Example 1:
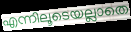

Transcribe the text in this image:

എന്നിലൂടെയല്ലാതെ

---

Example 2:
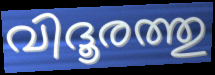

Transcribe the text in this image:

വിദൂരത്തു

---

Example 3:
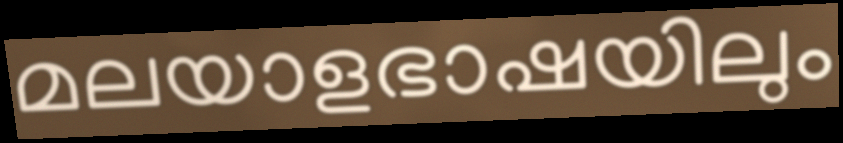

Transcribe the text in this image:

മലയാളഭാഷയിലും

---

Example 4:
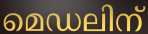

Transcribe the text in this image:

മെഡലിന്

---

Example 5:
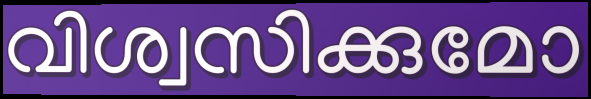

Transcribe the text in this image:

വിശ്വസിക്കുമോ